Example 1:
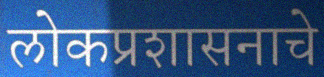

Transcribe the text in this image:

लोकप्रशासनाचे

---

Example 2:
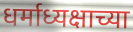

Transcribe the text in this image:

धर्माध्यक्षाच्या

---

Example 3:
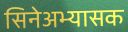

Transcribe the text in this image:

सिनेअभ्यासक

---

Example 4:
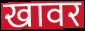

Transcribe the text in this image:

खावर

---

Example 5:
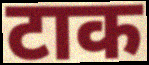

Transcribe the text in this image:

टाक